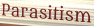
Parasitism